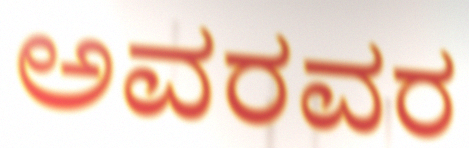
ಅವರವರ